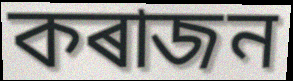
কৰাজন